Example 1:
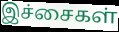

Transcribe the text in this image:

இச்சைகள்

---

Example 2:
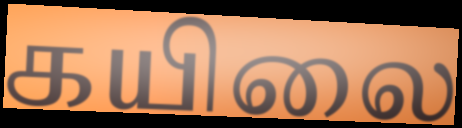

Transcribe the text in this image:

கயிலை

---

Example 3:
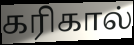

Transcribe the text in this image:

கரிகால்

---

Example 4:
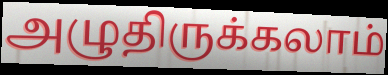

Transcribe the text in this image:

அழுதிருக்கலாம்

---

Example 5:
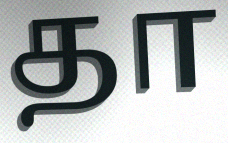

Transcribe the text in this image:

தா